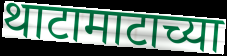
थाटामाटाच्या